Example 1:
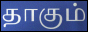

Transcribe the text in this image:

தாகும்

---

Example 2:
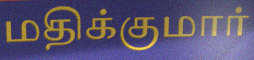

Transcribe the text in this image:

மதிக்குமார்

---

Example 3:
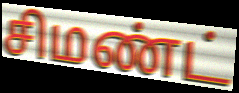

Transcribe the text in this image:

சிமண்ட்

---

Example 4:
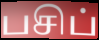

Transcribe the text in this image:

பசிப்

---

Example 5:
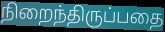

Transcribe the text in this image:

நிறைந்திருப்பதை